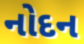
નોદન